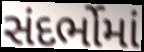
સંદર્ભોમાં